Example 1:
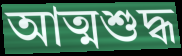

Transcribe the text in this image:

আত্মশুদ্ধ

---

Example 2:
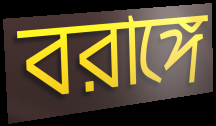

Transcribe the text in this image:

বরাঙ্গে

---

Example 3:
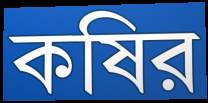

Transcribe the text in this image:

কষির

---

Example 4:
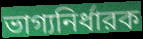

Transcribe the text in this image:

ভাগ্যনির্ধারক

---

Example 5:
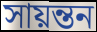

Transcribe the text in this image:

সায়ন্তন